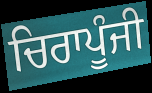
ਚਿਰਾਪੂੰਜੀ